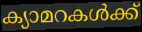
ക്യാമറകൾക്ക്